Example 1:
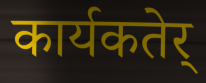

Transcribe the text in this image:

कार्यकतेर्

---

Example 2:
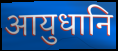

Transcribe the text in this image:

आयुधानि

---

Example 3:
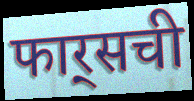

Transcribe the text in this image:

फार्सची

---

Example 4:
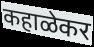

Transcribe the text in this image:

कहाळेकर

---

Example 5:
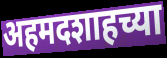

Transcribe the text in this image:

अहमदशाहच्या